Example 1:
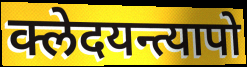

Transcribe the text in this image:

क्लेदयन्त्यापो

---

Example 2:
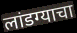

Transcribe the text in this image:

लांडग्याचा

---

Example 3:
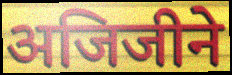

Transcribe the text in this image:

अजिजीने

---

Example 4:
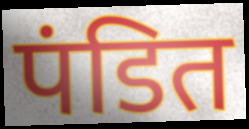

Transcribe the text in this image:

पंडित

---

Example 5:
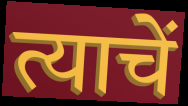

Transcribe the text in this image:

त्याचें